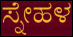
ಸ್ನೇಹಳ